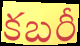
కబరీ